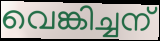
വെങ്കിച്ചന്